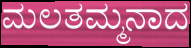
ಮಲತಮ್ಮನಾದ